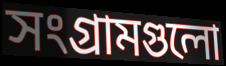
সংগ্রামগুলো